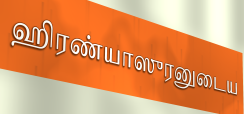
ஹிரண்யாஸுரனுடைய